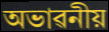
অভাৱনীয়